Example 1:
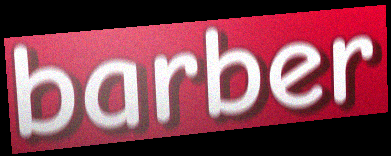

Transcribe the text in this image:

barber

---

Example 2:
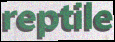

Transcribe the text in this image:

reptile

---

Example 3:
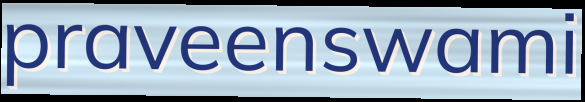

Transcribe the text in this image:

praveenswami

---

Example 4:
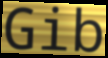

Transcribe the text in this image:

Gib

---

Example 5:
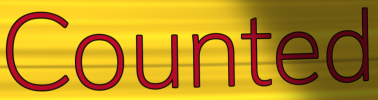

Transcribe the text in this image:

Counted